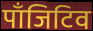
पाँजिटिव